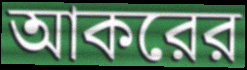
আকরের